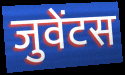
जुवेंटस